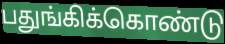
பதுங்கிக்கொண்டு